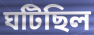
ঘটিছিল